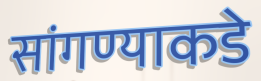
सांगण्याकडे